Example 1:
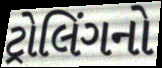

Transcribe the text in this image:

ટ્રોલિંગનો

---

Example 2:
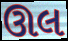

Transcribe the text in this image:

ઊલ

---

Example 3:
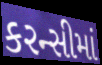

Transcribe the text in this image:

કરન્સીમાં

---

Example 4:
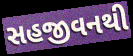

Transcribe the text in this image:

સહજીવનથી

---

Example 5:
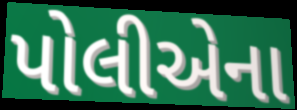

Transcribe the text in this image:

પોલીએના